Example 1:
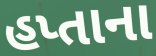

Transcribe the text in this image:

હપ્તાના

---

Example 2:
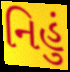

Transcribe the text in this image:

નિહું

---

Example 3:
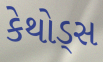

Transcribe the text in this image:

કેથોડ્સ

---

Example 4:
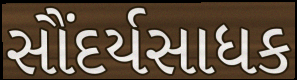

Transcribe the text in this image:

સૌંદર્યસાધક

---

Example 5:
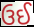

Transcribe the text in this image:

ઉઈ